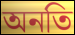
অনতি